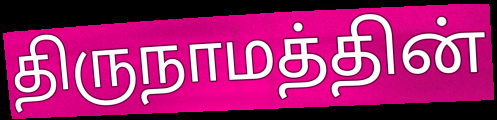
திருநாமத்தின்